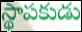
స్థాపకుడు